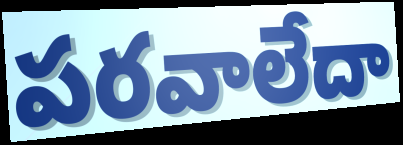
పరవాలేదా